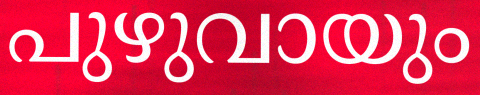
പുഴുവായും